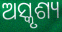
ଅସ୍କୃଶ୍ୟ